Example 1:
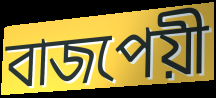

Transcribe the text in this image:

বাজপেয়ী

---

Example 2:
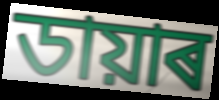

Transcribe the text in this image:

ডায়াৰ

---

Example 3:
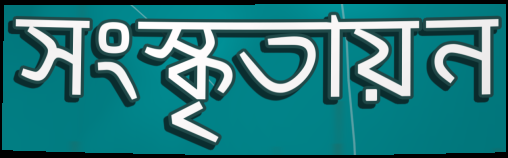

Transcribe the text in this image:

সংস্কৃতায়ন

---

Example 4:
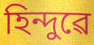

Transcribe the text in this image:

হিন্দুৱে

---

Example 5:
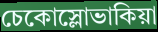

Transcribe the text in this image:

চেকোস্লোভাকিয়া